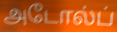
அடோல்ப்